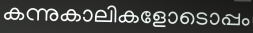
കന്നുകാലികളോടൊപ്പം